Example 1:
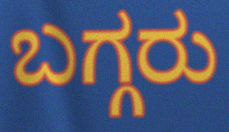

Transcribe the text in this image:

ಬಗ್ಗರು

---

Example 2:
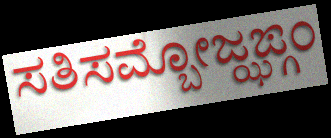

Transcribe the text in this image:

ಸತಿಸಮ್ಬೋಜ್ಝಙ್ಗಂ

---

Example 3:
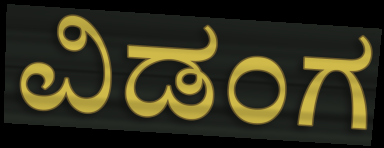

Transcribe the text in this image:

ವಿಡಂಗ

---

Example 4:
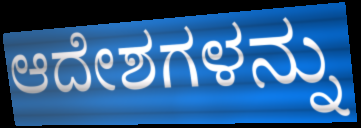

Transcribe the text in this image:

ಆದೇಶಗಳನ್ನು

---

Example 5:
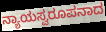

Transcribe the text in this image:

ನ್ಯಾಯಸ್ವರೂಪನಾದ